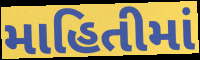
માહિતીમાં